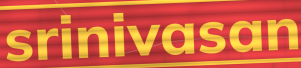
srinivasan